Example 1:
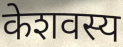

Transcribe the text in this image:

केशवस्य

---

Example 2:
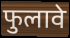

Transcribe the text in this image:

फुलावे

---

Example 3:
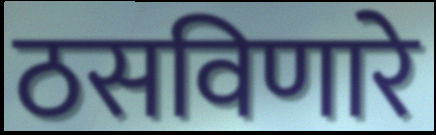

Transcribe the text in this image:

ठसविणारे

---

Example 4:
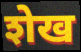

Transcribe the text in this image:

शेख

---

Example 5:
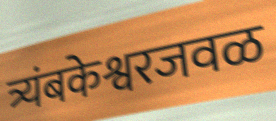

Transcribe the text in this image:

त्र्यंबकेश्वरजवळ